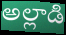
అల్లాడి